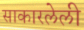
साकारलेली